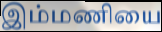
இம்மணியை